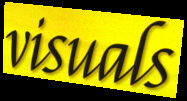
visuals